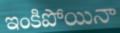
ఇంకిపోయినా